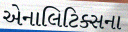
એનાલિટિક્સના